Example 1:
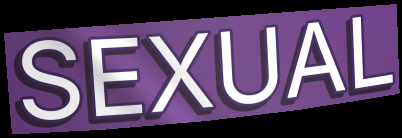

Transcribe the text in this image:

SEXUAL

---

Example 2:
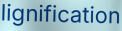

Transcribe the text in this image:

lignification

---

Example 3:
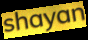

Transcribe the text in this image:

shayan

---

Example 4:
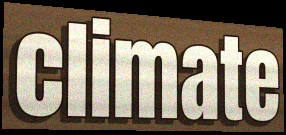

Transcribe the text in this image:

climate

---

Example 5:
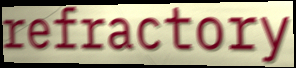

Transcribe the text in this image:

refractory